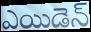
ఎయిడెన్